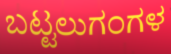
ಬಟ್ಟಲುಗಂಗಳ